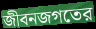
জীবনজগতের